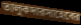
তালুকদারসাহেবের